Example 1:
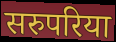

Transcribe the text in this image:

सरुपरिया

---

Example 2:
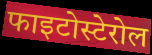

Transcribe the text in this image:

फाइटोस्टेरोल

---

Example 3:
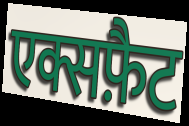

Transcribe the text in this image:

एक्सफ़ैट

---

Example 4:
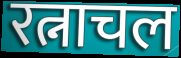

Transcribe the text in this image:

रत्नाचल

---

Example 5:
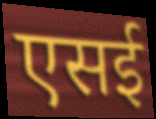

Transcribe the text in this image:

एसई